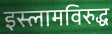
इस्लामविरुद्ध